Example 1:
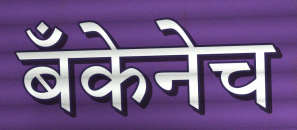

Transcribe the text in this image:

बँकेनेच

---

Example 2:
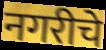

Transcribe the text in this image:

नगरीचे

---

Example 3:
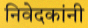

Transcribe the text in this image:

निवेदकांनी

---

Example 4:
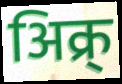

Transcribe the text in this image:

अिक्र्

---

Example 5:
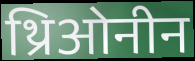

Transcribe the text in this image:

थ्रिओनीन